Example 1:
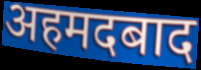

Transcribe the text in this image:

अहमदबाद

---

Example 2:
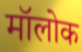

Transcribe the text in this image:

मॉलोक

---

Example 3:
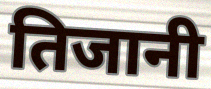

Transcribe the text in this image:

तिजानी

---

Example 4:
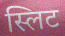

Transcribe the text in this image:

स्लिट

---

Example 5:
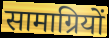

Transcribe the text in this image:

सामाग्रियों